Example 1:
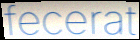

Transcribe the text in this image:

fecerat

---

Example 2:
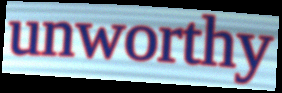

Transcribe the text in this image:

unworthy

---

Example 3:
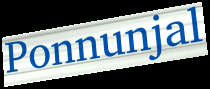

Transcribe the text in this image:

Ponnunjal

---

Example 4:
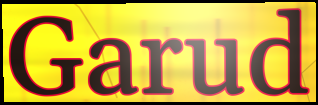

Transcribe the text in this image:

Garud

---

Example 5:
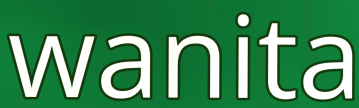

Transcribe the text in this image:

wanita